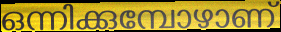
ഒന്നിക്കുമ്പോഴാണ്